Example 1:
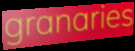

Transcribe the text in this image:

granaries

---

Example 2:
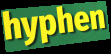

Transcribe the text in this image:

hyphen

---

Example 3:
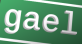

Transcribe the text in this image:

gael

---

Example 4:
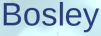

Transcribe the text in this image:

Bosley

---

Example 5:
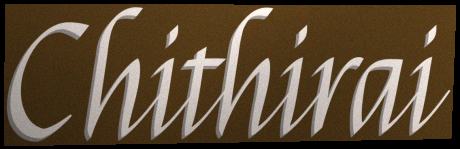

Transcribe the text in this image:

Chithirai